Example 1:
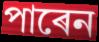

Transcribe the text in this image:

পাৰেন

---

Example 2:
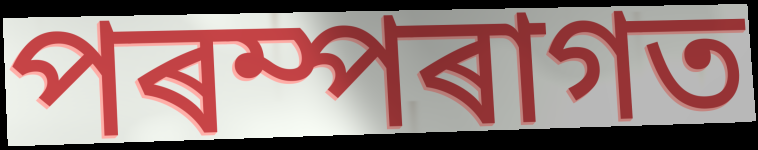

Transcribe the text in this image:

পৰম্পৰাগত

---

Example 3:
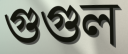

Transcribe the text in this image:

গুগুল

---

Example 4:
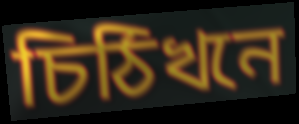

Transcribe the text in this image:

চিঠিখনে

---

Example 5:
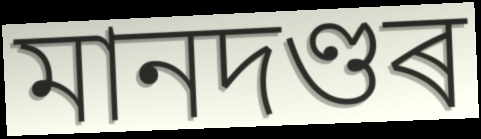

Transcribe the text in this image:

মানদণ্ডৰ